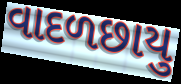
વાદળછાયુ